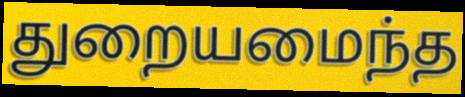
துறையமைந்த